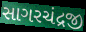
સાગરચંદ્રજી